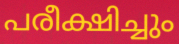
പരീക്ഷിച്ചും